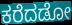
ಕರೆದಡೋ